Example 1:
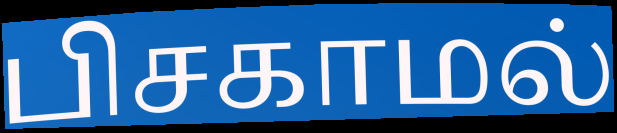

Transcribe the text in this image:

பிசகாமல்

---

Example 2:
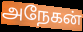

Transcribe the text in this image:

அநேகன்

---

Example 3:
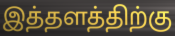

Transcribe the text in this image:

இத்தளத்திற்கு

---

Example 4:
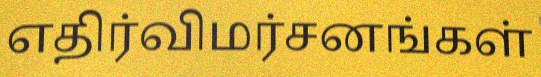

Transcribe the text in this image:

எதிர்விமர்சனங்கள்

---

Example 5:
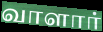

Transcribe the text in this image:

வாளார்